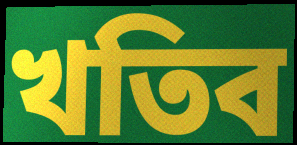
খতিব